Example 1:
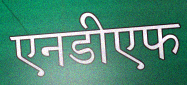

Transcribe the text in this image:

एनडीएफ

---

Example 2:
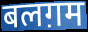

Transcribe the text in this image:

बलग़म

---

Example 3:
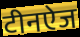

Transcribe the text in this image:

टीनऐज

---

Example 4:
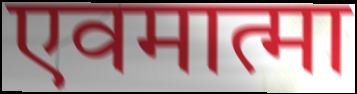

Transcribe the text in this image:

एवमात्मा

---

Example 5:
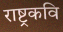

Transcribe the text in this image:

राष्ट्रकवि